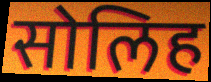
सोलिह